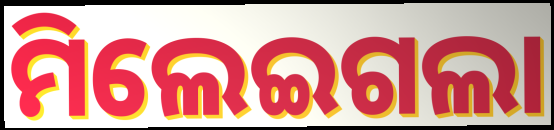
ମିଲେଇଗଲା